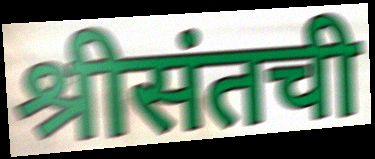
श्रीसंतची